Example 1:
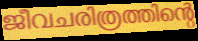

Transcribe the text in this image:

ജീവചരിത്രത്തിന്റെ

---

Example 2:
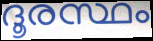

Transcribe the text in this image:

ദൂരസ്ഥം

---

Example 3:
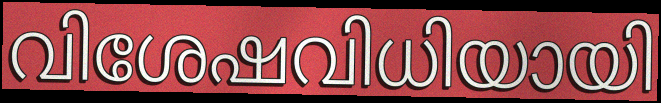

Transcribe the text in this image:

വിശേഷവിധിയായി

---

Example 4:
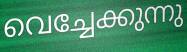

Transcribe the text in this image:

വെച്ചേക്കുന്നു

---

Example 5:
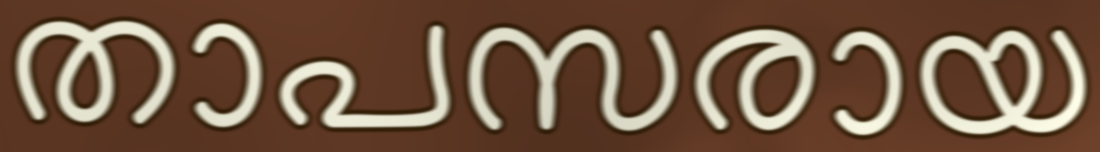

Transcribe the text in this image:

താപസരായ